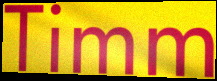
Timm